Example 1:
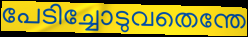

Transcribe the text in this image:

പേടിച്ചോടുവതെന്തേ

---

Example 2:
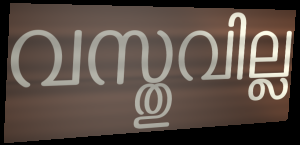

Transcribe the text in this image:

വസ്തുവില്ല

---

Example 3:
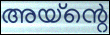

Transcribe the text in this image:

അയ്ന്റെ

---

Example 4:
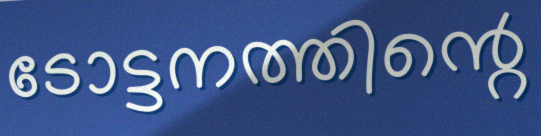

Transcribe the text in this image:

ടോട്ടനത്തിന്റെ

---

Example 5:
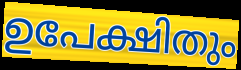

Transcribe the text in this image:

ഉപേക്ഷിതും